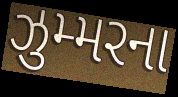
ઝુમ્મરના